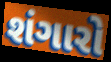
શંગારો